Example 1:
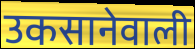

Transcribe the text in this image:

उकसानेवाली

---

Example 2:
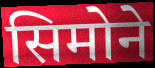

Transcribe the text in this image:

सिमोने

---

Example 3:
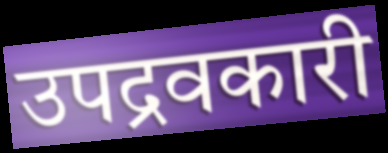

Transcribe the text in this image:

उपद्रवकारी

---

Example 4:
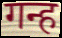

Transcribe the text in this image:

गन्ह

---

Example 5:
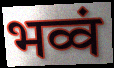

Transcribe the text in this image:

भव्वं